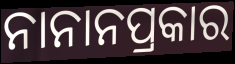
ନାନାନପ୍ରକାର